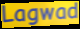
Lagwad